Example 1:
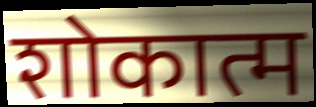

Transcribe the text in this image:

शोकात्म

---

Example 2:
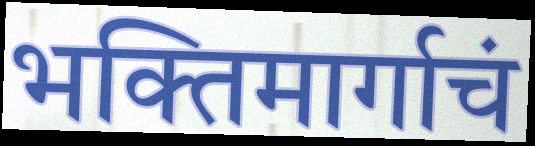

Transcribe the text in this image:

भक्तिमार्गाचं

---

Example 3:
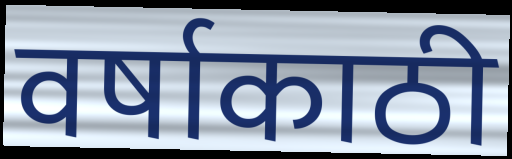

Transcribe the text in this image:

वर्षाकाठी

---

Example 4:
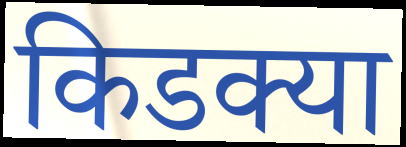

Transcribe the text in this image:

किडक्या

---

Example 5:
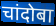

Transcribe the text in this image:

चांदोबा